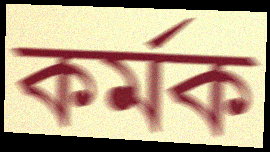
কৰ্মক